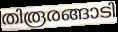
തിരൂരങ്ങാടി